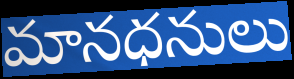
మానధనులు